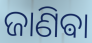
ଜାଣିଵା